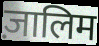
ज़ालिम